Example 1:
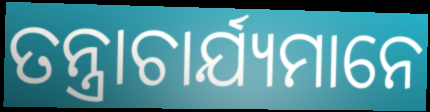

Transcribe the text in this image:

ତନ୍ତ୍ରାଚାର୍ଯ୍ୟମାନେ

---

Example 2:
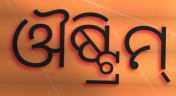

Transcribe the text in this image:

ଔଷ୍ଟ୍ରିମ୍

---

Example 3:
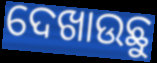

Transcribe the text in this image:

ଦେଖାଉଛୁ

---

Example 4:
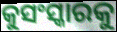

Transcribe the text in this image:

କୁସଂସ୍କାରକୁ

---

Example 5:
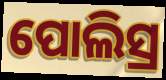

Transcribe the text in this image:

ପୋଲିସ୍ର